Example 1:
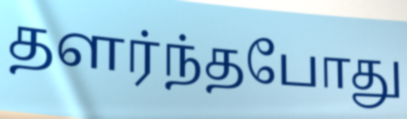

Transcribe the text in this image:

தளர்ந்தபோது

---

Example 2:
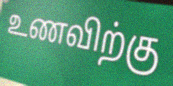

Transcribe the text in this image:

உணவிற்கு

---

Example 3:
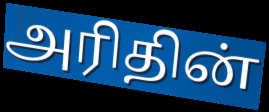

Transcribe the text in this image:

அரிதின்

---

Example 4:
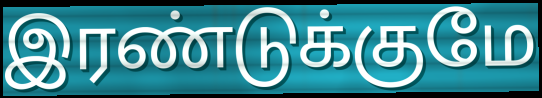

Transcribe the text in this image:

இரண்டுக்குமே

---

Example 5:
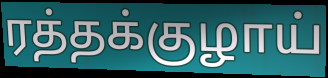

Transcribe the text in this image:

ரத்தக்குழாய்